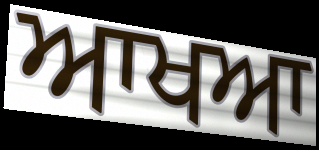
ਆਖਆ